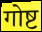
गोष्ट